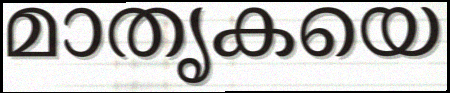
മാതൃകയെ